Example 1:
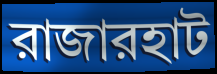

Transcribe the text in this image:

রাজারহাট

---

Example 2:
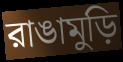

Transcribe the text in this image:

রাঙামুড়ি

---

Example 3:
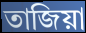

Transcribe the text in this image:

তাজিয়া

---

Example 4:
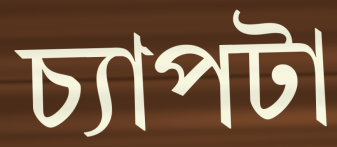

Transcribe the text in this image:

চ্যাপটা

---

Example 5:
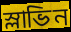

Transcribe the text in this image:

স্লাভিন